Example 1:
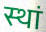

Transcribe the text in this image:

स्थां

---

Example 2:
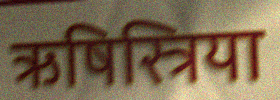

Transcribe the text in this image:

ऋषिस्त्रिया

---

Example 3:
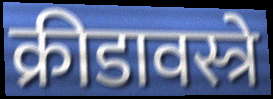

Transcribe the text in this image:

क्रीडावस्त्रे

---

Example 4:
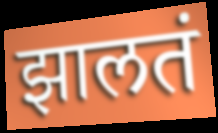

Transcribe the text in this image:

झालतं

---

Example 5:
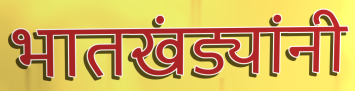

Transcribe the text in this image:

भातखंड्यांनी